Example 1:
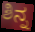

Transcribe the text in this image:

ಶಿನ್ನ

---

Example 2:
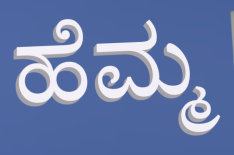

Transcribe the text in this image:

ಹೆಮ್ಮ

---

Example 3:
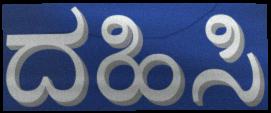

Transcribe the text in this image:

ದಹಿಸಿ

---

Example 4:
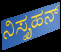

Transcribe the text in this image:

ನಿಸ್ಪೃಹನ್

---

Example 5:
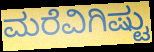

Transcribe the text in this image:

ಮರೆವಿಗಿಷ್ಟು